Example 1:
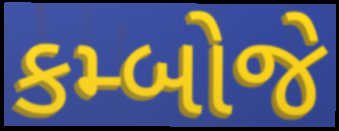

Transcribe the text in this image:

કમ્બોજે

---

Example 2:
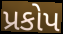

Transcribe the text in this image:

પ્રકોપ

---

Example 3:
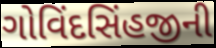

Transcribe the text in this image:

ગોવિંદસિંહજીની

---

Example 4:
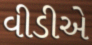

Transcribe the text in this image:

વીડીએ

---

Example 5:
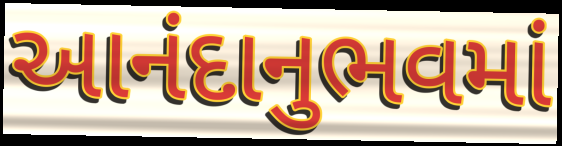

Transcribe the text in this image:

આનંદાનુભવમાં